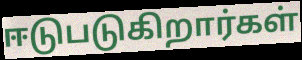
ஈடுபடுகிறார்கள்